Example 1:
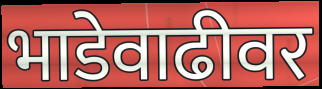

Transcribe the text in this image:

भाडेवाढीवर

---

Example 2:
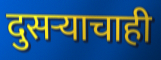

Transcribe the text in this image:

दुसऱ्याचाही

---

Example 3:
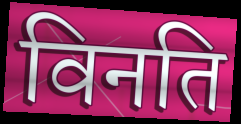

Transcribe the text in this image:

विनति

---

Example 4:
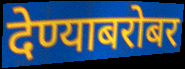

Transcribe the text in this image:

देण्याबरोबर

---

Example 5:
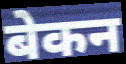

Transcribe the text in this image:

बेकन